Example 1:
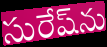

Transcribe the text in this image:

సురేష్‌ను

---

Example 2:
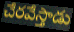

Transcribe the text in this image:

చేరవేస్తాడు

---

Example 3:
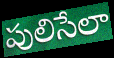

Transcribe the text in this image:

పులిసేలా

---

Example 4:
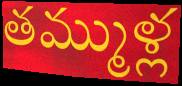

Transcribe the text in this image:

తమ్ముళ్ల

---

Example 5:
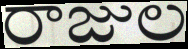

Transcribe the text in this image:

రాజుల